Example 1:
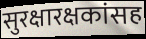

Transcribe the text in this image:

सुरक्षारक्षकांसह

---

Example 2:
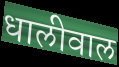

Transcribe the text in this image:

धालीवाल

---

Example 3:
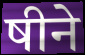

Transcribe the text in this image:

षीने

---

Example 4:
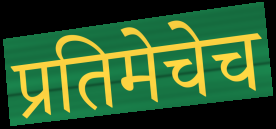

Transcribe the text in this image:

प्रतिमेचेच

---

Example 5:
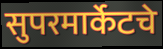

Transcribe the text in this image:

सुपरमार्केटचे